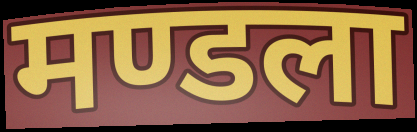
मण्डला